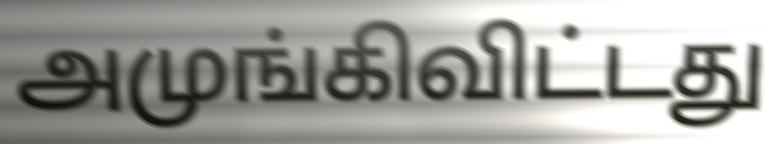
அமுங்கிவிட்டது